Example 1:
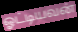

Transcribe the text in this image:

ஓட்டியவன்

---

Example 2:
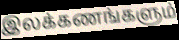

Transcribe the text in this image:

இலக்கணங்களும்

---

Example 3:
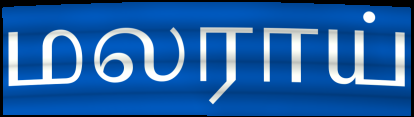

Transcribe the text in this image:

மலராய்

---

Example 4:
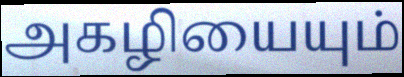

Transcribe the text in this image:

அகழியையும்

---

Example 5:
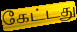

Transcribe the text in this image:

கேட்டது